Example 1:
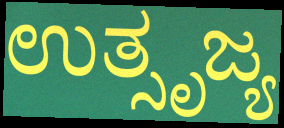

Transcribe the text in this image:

ಉತ್ಸೃಜ್ಯ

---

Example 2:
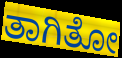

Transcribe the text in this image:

ತಾಗಿತೋ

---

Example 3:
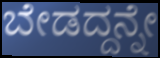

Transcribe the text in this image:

ಬೇಡದ್ದನ್ನೇ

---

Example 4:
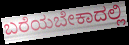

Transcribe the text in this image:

ಬರೆಯಬೇಕಾದಲ್ಲಿ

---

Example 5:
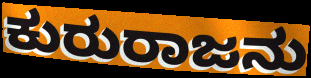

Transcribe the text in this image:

ಕುರುರಾಜನು